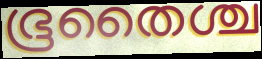
ഭൂതൈശ്ച